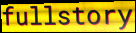
fullstory